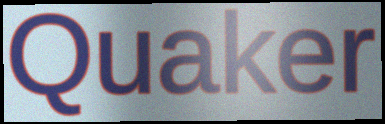
Quaker